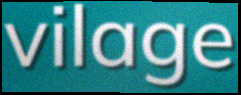
vilage